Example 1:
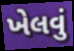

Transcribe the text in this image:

ખેલવું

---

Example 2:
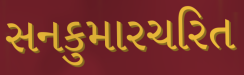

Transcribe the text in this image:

સનકુમારચરિત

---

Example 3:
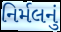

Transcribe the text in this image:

નિર્મલનું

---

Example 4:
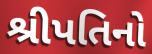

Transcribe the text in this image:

શ્રીપતિનો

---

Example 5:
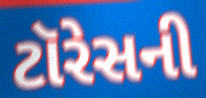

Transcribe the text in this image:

ટૉરેસની